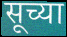
सूच्या